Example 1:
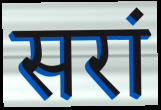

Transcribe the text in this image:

सरां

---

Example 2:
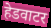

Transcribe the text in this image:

हेडवाटर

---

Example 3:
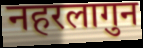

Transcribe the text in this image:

नहरलागुन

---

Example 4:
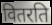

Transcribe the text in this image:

वितरति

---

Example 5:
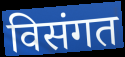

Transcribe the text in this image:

विसंगत